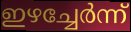
ഇഴച്ചേർന്ന്